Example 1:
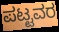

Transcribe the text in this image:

ಪಟ್ಟವರ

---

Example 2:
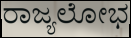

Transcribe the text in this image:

ರಾಜ್ಯಲೋಭ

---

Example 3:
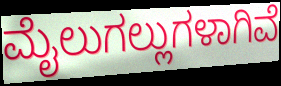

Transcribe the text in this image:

ಮೈಲುಗಲ್ಲುಗಳಾಗಿವೆ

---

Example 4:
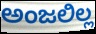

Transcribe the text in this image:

ಅಂಜಲಿಲ್ಲ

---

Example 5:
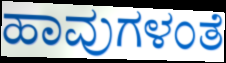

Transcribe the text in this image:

ಹಾವುಗಳಂತೆ